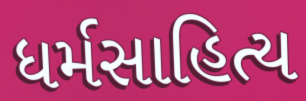
ધર્મસાહિત્ય